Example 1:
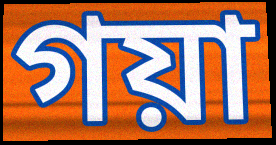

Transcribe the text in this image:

গয়া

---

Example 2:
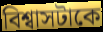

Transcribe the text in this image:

বিশ্বাসটাকে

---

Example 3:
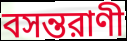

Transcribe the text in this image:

বসন্তরাণী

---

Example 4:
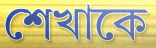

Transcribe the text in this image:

শেখাকে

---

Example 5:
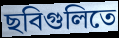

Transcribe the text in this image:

ছবিগুলিতে